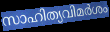
സാഹിത്യവിമർശം